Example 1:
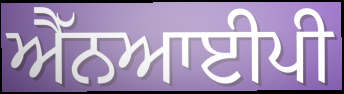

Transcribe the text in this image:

ਐੱਨਆਈਪੀ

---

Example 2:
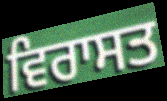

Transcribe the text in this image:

ਵਿਰਾਸਤ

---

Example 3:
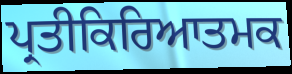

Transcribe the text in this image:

ਪ੍ਰਤੀਕਿਰਿਆਤਮਕ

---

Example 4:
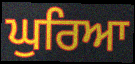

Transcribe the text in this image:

ਘੁਰਿਆ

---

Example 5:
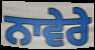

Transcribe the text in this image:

ਨਾਵੇਰੇ